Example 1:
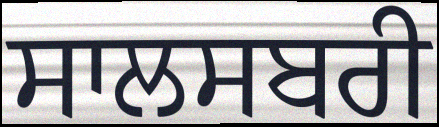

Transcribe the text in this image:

ਸਾਲਸਬਰੀ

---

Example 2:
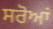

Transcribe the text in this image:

ਸਰੋਆਂ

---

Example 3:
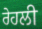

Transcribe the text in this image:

ਰੇਹਲੀ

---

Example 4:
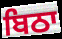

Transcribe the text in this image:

ਬਿਠਾ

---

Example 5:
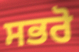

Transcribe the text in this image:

ਸਭਰੋ